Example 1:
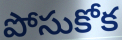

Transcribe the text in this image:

పోసుకోక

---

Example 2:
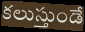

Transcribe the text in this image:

కలుస్తుండే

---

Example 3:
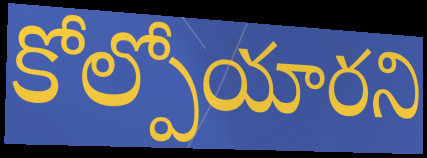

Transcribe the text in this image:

కోల్పోయారని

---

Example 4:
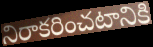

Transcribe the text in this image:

నిరాకరించటానికి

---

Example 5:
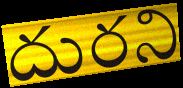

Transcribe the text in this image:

దురని